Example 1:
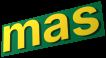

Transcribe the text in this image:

mas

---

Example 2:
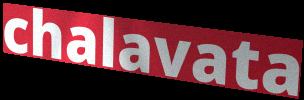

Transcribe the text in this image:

chalavata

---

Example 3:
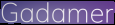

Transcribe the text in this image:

Gadamer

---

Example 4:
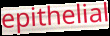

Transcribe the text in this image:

epithelial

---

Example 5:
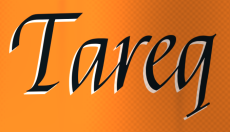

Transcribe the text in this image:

Tareq